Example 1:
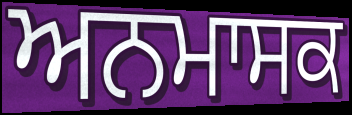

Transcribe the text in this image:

ਅਨਮਾਸਕ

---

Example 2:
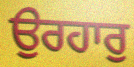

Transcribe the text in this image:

ਉਰਹਾਰੁ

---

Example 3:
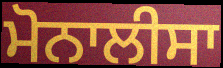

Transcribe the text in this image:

ਮੋਨਾਲੀਸਾ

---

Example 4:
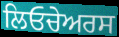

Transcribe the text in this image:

ਲਿਓਚੇਅਰਸ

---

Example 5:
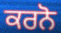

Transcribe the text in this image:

ਕਰਨੋ